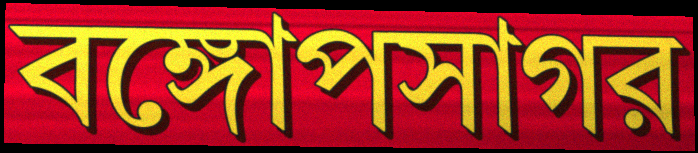
বঙ্গোপসাগর